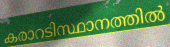
കരാറടിസ്ഥാനത്തിൽ